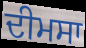
ਦੀਮਸਾ